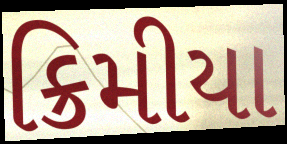
ક્રિમીયા